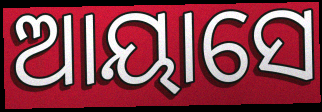
ଆୟାସେ